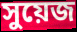
সুয়েজ